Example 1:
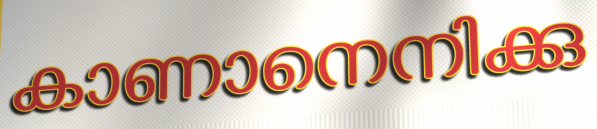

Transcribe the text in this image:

കാണാനെനിക്കു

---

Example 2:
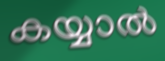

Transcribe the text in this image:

കയ്യാൽ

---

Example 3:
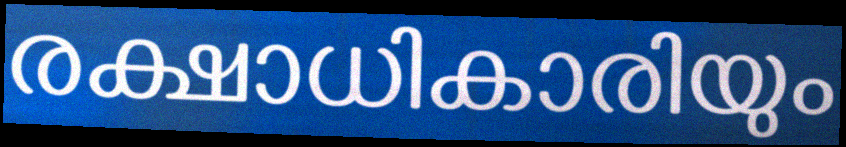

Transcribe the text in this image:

രക്ഷാധികാരിയും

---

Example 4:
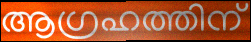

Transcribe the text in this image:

ആഗ്രഹത്തിന്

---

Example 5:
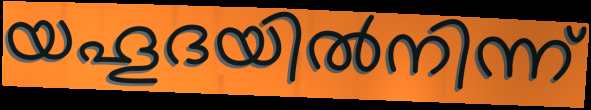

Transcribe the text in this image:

യഹൂദയിൽനിന്ന്